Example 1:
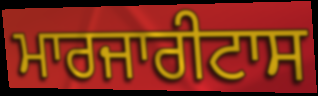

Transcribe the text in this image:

ਮਾਰਜਾਰੀਟਾਸ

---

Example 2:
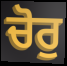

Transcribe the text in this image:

ਚੋਰੁ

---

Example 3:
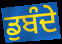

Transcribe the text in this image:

ਡੁਬੰਦੇ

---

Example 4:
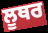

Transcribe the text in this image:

ਲੂਥਰ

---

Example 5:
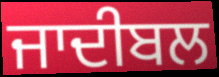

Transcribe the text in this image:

ਜਾਦੀਬਲ